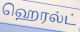
ஹெரல்ட்